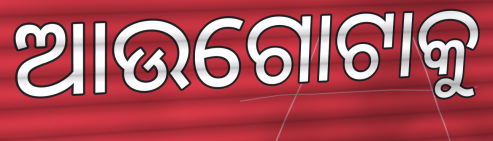
ଆଉଗୋଟାକୁ